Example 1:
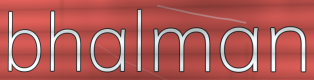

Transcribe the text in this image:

bhalman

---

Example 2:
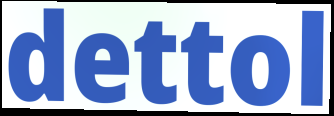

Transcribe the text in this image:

dettol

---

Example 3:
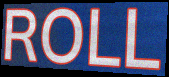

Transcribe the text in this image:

ROLL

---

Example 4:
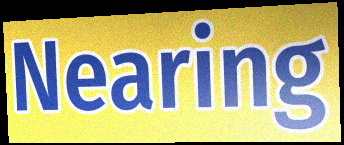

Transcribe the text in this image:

Nearing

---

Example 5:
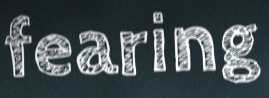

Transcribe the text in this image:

fearing